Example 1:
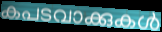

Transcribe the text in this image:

കപടവാക്കുകൾ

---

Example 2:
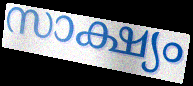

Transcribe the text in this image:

സാക്ഷ്യം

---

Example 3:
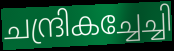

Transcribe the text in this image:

ചന്ദ്രികച്ചേച്ചി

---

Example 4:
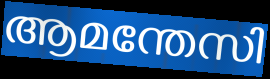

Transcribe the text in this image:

ആമന്തേസി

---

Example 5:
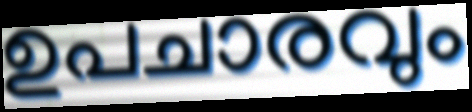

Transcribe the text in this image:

ഉപചാരവും